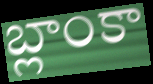
బ్లాంకా